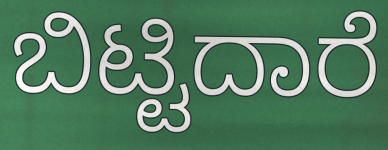
ಬಿಟ್ಟಿದಾರೆ